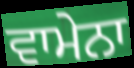
ਵਾਮੇਨਾ